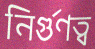
নির্গুণত্ব